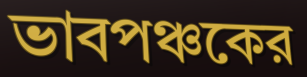
ভাবপঞ্চকের